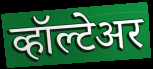
व्हॉल्टेअर